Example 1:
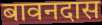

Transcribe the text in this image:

बावनदास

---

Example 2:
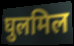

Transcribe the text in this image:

घुलमिल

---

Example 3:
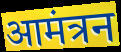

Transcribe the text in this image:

आमंत्रन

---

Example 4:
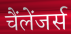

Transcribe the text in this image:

चैंलेंजर्स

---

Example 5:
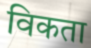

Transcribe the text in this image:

विकता